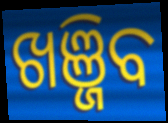
ଖଞ୍ଜିବ